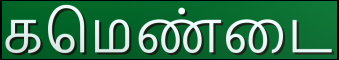
கமெண்டை